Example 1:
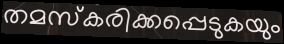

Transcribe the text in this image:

തമസ്കരിക്കപ്പെടുകയും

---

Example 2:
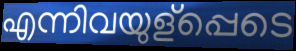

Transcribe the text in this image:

എന്നിവയുള്പ്പെടെ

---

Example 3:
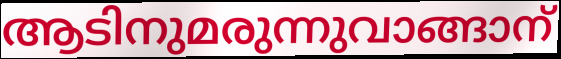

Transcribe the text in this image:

ആടിനുമരുന്നുവാങ്ങാന്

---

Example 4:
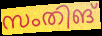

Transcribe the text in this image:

സംതിങ്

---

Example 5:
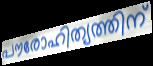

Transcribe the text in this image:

പൗരോഹിത്യത്തിന്